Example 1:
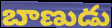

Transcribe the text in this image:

బాణుడు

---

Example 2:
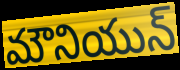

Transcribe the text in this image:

మౌనియున్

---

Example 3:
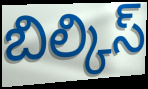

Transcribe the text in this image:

బిల్కిస్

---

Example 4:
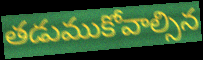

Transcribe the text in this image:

తడుముకోవాల్సిన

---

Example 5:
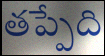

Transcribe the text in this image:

తప్పేది